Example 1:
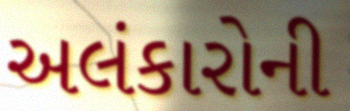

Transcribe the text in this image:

અલંકારોની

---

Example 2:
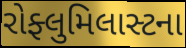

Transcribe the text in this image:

રોફ્લુમિલાસ્ટના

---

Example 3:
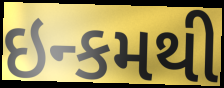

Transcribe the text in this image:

ઇન્કમથી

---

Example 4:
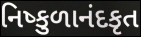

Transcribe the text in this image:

નિષ્કુળાનંદકૃત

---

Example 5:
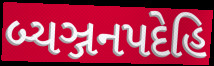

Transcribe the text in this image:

બ્યઞ્જનપદેહિ